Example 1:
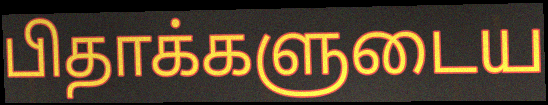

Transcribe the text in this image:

பிதாக்களுடைய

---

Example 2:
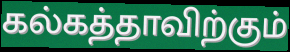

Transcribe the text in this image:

கல்கத்தாவிற்கும்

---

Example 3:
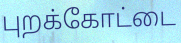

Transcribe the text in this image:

புறக்கோட்டை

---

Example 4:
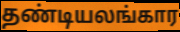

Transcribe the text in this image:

தண்டியலங்கார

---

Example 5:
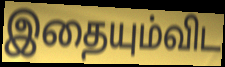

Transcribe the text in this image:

இதையும்விட